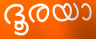
ദൂരയാ